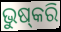
ଭୁଷ୍‌କରି